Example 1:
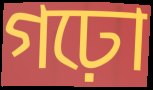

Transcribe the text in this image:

গঢ়ো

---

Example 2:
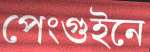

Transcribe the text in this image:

পেংগুইনে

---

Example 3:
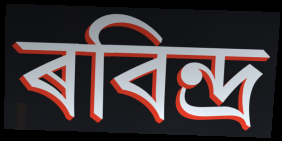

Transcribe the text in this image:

ৰবিন্দ্ৰ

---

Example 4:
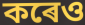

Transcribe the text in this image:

কৰেও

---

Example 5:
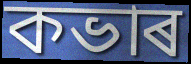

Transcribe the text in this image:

কভাৰ